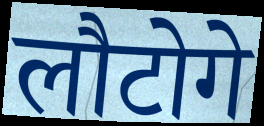
लौटोगे